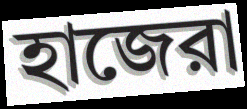
হাজেরা